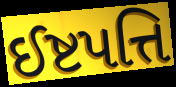
ઈષ્ટપત્તિ